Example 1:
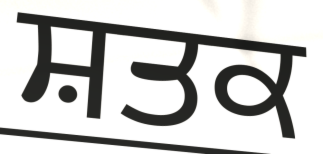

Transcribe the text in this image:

ਸ਼ਤਕ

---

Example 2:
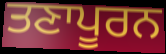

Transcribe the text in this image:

ਤਣਾਪੂਰਨ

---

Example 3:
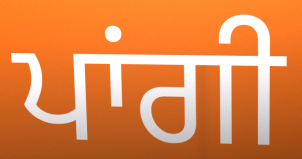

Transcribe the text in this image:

ਪਾਂਗੀ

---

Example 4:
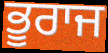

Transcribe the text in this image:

ਭੂਰਾਜ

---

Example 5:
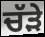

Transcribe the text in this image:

ਚੱੜੇ